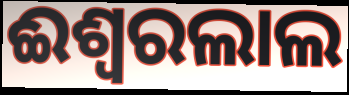
ଈଶ୍ଵରଲାଲ